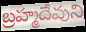
బ్రహ్మదేవుని